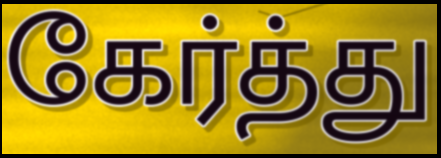
கேர்த்து